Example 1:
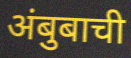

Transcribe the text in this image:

अंबुबाची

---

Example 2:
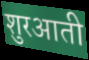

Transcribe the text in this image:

शुरआती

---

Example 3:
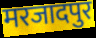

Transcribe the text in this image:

मरजादपुर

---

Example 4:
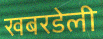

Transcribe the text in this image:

खबरडेली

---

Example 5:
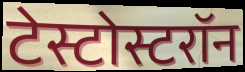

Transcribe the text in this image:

टेस्टोस्टरॉन